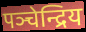
पञ्चेन्द्रिय